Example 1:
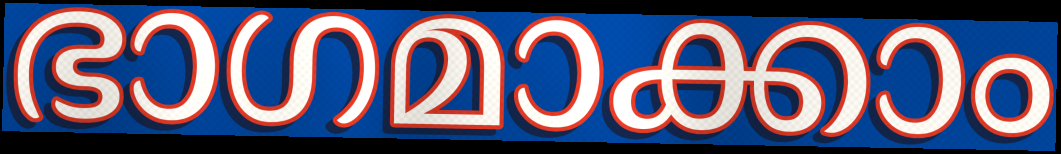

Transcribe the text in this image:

ഭാഗമാക്കാം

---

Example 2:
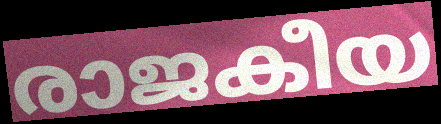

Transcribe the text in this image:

രാജകീയ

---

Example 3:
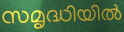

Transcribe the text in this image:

സമൃദ്ധിയിൽ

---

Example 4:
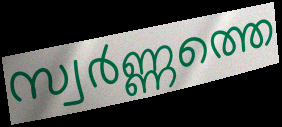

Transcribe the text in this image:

സ്വർണ്ണത്തെ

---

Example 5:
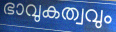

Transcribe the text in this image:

ഭാവുകത്വവും